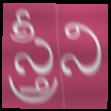
స్త్రీని